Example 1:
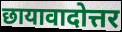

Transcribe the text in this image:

छायावादोत्तर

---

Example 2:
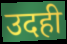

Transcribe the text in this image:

उदही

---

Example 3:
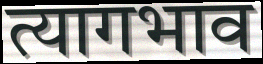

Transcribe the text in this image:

त्यागभाव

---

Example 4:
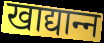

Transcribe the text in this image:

खाद्यान्‍न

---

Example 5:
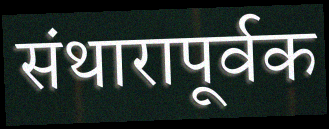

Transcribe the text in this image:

संथारापूर्वक